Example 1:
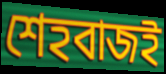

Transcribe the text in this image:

শেহবাজই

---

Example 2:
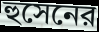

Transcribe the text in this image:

হুসেনের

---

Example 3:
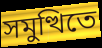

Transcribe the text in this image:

সমুত্থিতে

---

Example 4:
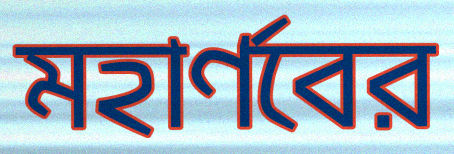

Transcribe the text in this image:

মহার্ণবের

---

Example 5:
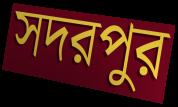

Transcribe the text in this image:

সদরপুর